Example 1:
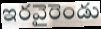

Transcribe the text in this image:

ఇరవైరెండు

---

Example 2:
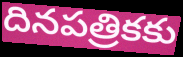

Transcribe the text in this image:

దినపత్రికకు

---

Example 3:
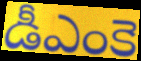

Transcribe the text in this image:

డీఎంకె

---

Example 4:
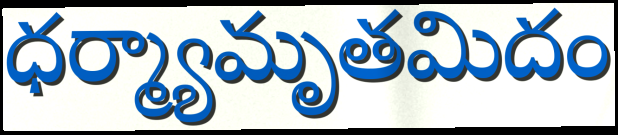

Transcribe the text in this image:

ధర్మ్యామృతమిదం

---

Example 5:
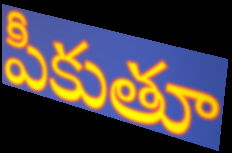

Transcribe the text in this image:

పీకుతూ